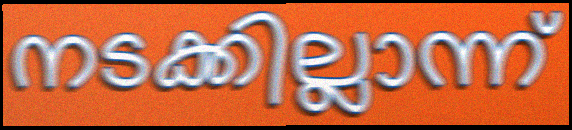
നടക്കില്ലാന്ന്